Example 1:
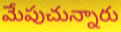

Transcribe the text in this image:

మేపుచున్నారు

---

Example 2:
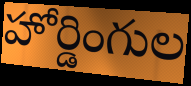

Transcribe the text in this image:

హోర్డింగుల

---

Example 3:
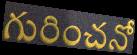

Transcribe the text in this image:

గురించనో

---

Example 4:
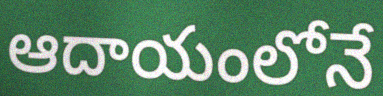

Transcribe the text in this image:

ఆదాయంలోనే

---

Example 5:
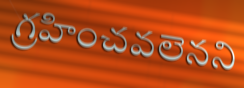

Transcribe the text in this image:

గ్రహించవలెనని